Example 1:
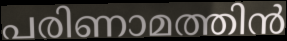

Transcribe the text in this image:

പരിണാമത്തിൻ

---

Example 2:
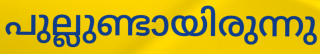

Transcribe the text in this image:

പുല്ലുണ്ടായിരുന്നു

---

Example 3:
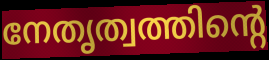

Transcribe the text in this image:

നേതൃത്വത്തിന്റെ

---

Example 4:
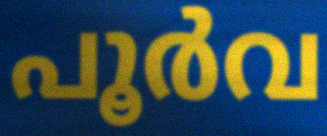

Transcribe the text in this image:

പൂർവ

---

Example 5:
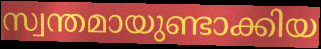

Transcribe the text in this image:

സ്വന്തമായുണ്ടാക്കിയ